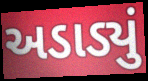
અડાડ્યું